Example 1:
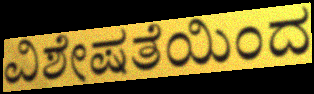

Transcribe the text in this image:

ವಿಶೇಷತೆಯಿಂದ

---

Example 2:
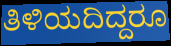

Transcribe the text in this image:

ತಿಳಿಯದಿದ್ದರೂ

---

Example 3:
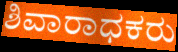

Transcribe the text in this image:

ಶಿವಾರಾಧಕರು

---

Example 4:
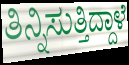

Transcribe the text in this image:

ತಿನ್ನಿಸುತ್ತಿದ್ದಾಳೆ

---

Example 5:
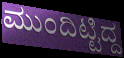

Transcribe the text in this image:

ಮುಂದಿಟ್ಟಿದ್ದ